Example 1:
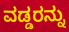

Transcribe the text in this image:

ವಡ್ಡರನ್ನು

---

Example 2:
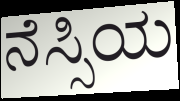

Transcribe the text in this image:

ನೆಸ್ಸಿಯ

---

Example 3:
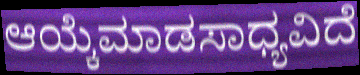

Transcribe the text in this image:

ಆಯ್ಕೆಮಾಡಸಾಧ್ಯವಿದೆ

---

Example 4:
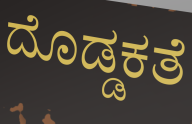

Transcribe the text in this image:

ದೊಡ್ಡಕತೆ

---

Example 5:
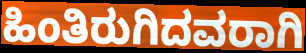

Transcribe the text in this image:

ಹಿಂತಿರುಗಿದವರಾಗಿ